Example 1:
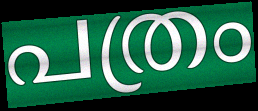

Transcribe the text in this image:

പത്രം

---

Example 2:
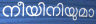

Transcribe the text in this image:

നീയിനിയുമാ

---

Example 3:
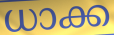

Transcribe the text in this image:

ധാക്ക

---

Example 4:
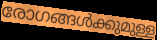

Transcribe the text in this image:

രോഗങ്ങൾക്കുമുള്ള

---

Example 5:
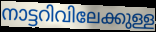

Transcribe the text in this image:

നാട്ടറിവിലേക്കുള്ള